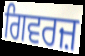
ਗਿਵਰਜ਼